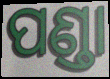
ପଣ୍ଡା